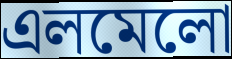
এলমেলো